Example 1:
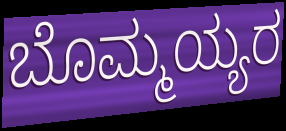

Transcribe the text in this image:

ಬೊಮ್ಮಯ್ಯರ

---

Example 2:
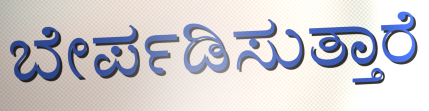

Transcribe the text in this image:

ಬೇರ್ಪಡಿಸುತ್ತಾರೆ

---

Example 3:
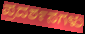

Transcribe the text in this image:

ಪ್ರದರ್ಶನಗಳು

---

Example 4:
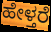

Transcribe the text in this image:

ಹೇಳ್ತರೆ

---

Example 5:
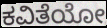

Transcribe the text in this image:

ಕವಿತೆಯೋ